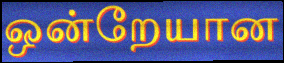
ஒன்றேயான